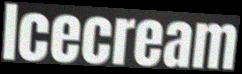
Icecream